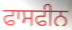
ਫਾਸਫੀਨ